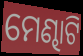
ମେଣ୍ଢାଟି